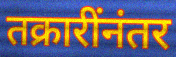
तक्रारींनंतर